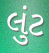
લુંટ